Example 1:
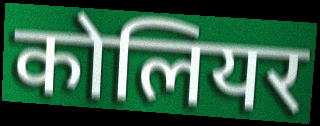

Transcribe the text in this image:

कोलियर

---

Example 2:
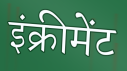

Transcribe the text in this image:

इंक्रीमेंट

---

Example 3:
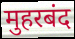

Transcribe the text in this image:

मुहरबंद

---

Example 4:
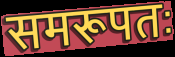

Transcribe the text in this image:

समरूपतः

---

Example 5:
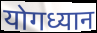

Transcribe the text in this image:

योगध्यान